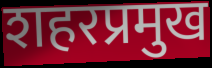
शहरप्रमुख